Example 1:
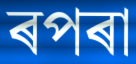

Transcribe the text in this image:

ৰপৰা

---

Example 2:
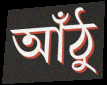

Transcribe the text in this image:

আঁঠু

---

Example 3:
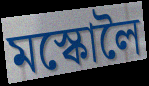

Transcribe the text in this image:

মস্কোলৈ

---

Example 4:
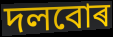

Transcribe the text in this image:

দলবোৰ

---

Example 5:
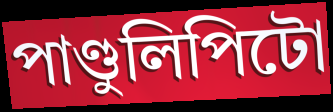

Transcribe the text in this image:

পাণ্ডুলিপিটো